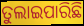
ତୁଲାଇପାରିଛି